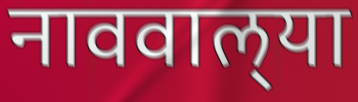
नाववाल्या